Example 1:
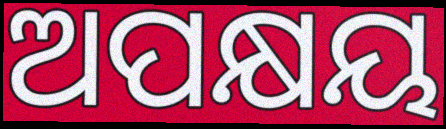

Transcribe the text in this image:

ଅପକ୍ଷୟ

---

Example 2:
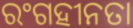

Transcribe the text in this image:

ରଂଗହୀନତା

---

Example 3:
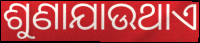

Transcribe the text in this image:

ଶୁଣାଯାଉଥାଏ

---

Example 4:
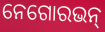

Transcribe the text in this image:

ନେଗୋରଭନ୍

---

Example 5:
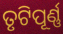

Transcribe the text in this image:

ତୃଟିପୂର୍ଣ୍ଣ